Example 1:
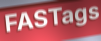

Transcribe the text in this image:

FASTags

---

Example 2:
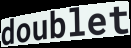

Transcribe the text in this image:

doublet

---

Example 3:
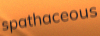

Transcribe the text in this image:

spathaceous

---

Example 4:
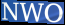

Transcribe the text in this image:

NWO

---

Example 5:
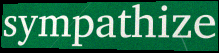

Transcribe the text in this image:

sympathize